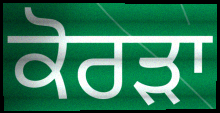
ਕੋਰੜਾ